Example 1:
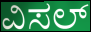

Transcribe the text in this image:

ವಿಸಲ್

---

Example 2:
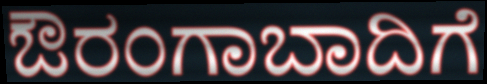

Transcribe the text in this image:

ಔರಂಗಾಬಾದಿಗೆ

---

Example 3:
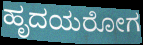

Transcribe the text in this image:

ಹೃದಯರೋಗ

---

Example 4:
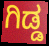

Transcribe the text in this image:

ಗಿಡ್ಡ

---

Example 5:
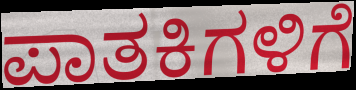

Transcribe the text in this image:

ಪಾತಕಿಗಳಿಗೆ